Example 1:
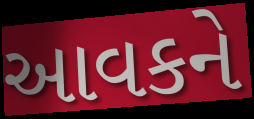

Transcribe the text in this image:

આવકને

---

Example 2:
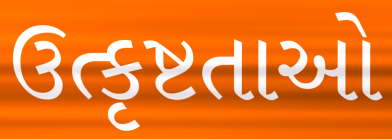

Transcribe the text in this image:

ઉત્કૃષ્ટતાઓ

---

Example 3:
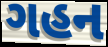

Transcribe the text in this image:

ગહન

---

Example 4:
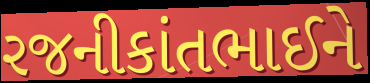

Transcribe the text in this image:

રજનીકાંતભાઈને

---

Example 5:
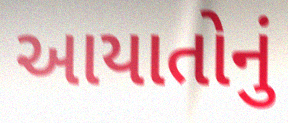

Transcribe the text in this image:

આયાતોનું